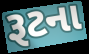
રૂટના